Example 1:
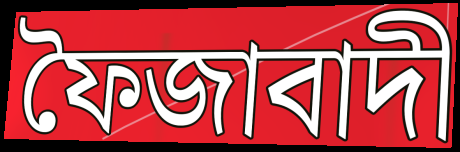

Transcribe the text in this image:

ফৈজাবাদী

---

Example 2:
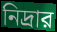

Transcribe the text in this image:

নিদ্রার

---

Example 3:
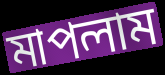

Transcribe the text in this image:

মাপলাম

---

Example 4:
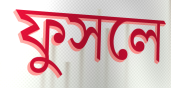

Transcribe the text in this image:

ফুসলে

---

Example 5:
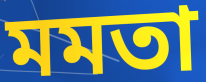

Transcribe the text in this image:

মমতা